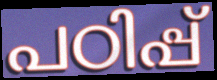
പഠിപ്പ്